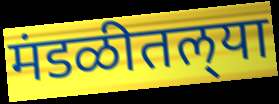
मंडळीतल्या